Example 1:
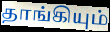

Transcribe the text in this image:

தாங்கியும்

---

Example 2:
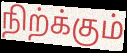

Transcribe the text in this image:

நிற்க்கும்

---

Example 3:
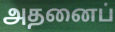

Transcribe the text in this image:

அதனைப்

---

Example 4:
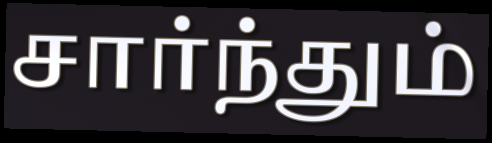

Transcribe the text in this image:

சார்ந்தும்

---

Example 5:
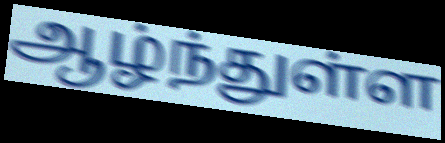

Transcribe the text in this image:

ஆழ்ந்துள்ள